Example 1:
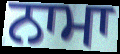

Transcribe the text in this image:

ਨਾਮਾ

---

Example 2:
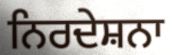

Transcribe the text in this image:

ਨਿਰਦੇਸ਼ਨਾ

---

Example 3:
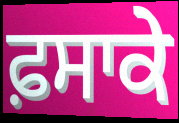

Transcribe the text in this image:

ਫ਼ਸਾਕੇ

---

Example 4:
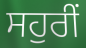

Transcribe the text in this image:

ਸਹੁਰੀਂ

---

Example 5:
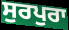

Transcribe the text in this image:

ਸੁਰਪੁਰਾ